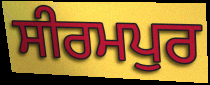
ਸੀਰਮਪੁਰ